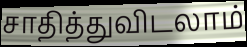
சாதித்துவிடலாம்